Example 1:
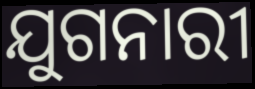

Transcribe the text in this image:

ଯୁଗନାରୀ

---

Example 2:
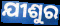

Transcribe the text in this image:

ଯୀଶୁର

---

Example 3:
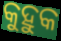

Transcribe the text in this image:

କୁହୁକ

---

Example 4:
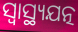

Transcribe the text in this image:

ସ୍ୱାସ୍ଥ୍ୟଯତ୍ନ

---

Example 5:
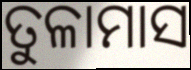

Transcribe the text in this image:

ତୁଳାମାସ